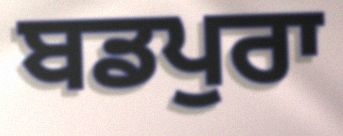
ਬਡਪੁਰਾ